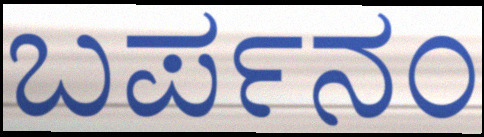
ಬರ್ಪನಂ